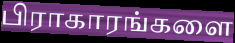
பிராகாரங்களை